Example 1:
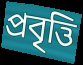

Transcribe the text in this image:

প্রবৃত্তি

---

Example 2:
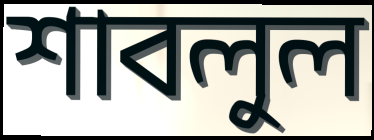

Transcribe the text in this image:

শাবলুল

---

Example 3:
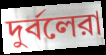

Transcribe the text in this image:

দুর্বলেরা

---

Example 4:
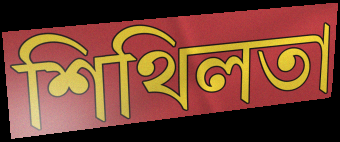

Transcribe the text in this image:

শিথিলতা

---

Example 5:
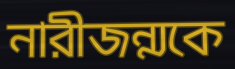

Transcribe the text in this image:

নারীজন্মকে